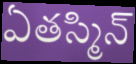
ఏతస్మిన్